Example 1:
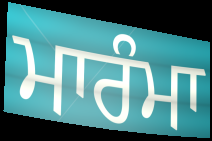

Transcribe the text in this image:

ਮਾਰੰਮਾ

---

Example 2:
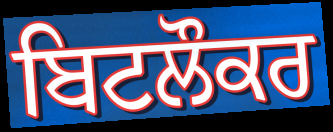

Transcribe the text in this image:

ਬਿਟਲੌਕਰ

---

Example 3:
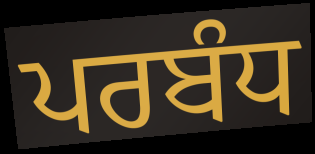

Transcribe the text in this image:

ਪਰਬੰਧ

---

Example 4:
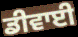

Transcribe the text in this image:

ਡੀਵਾਈ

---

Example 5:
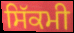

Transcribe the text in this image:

ਸਿੱਕਮੀ